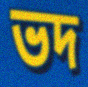
ভদ